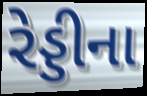
રેડ્ડીના